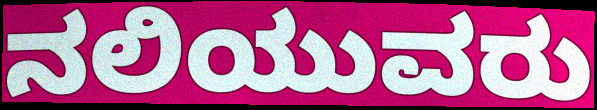
ನಲಿಯುವರು